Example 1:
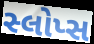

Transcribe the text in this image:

સ્લોપ્સ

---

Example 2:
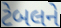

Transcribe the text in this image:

ટેબલને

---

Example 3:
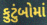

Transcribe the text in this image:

કુટુંબોમાં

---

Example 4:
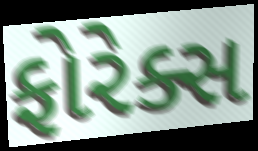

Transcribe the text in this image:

ફોરેક્સ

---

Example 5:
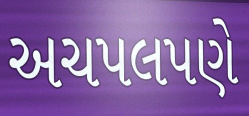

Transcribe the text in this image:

અચપલપણે